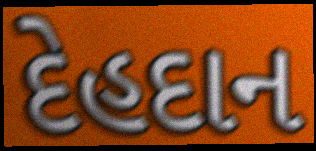
દેહદાન